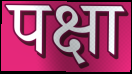
पक्षा